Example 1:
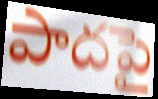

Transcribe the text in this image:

పాదపై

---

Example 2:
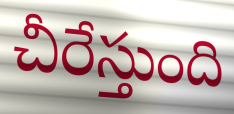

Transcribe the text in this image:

చీరేస్తుంది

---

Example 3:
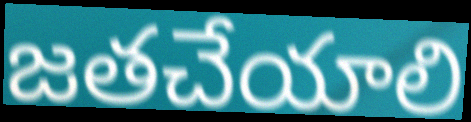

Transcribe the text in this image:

జతచేయాలి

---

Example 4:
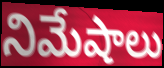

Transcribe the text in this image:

నిమేషాలు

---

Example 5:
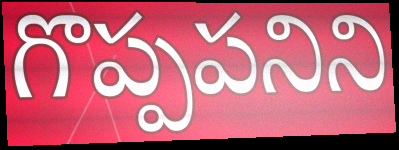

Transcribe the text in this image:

గొప్పపనిని